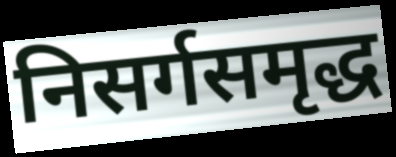
निसर्गसमृद्ध